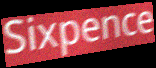
Sixpence